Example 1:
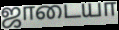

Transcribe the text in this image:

ஜாடையா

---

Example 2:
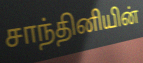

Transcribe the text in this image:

சாந்தினியின்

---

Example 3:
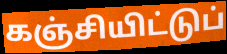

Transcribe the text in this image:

கஞ்சியிட்டுப்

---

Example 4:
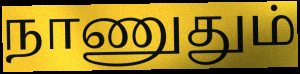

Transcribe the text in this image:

நாணுதும்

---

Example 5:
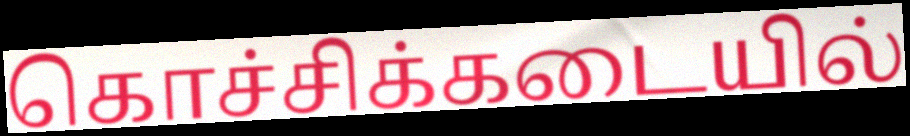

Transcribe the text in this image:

கொச்சிக்கடையில்